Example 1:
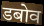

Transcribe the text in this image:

डबोव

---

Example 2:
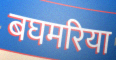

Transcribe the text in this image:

बघमरिया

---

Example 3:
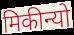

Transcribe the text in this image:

मिकीन्यो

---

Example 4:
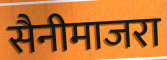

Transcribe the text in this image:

सैनीमाजरा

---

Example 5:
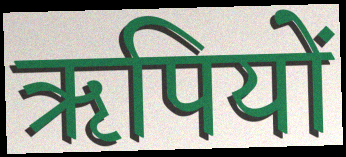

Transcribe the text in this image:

ऋपियों